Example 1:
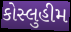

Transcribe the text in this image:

કોસ્લુહીમ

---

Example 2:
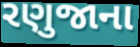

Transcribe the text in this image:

રણુજાના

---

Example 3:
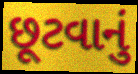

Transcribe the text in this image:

છૂટવાનું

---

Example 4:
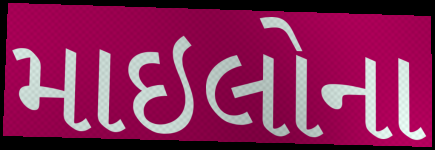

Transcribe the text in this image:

માઇલોના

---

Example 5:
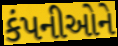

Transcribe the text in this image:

કંપનીઓને